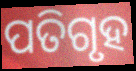
ପତିଗୃହ